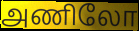
அணிலோ